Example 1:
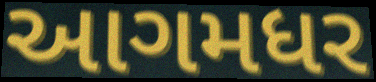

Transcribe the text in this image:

આગમધર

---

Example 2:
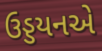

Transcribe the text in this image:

ઉડ્ડયનએ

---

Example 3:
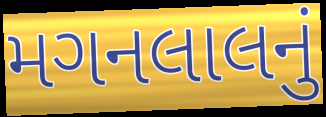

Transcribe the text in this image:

મગનલાલનું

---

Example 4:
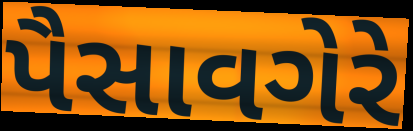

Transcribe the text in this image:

પૈસાવગેરે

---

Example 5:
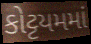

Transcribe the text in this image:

કોટ્ટયમમાં